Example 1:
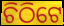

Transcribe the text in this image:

ଚିଠିଟେ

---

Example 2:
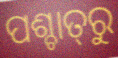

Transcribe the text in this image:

ପଶ୍ଚାତ୍‌ରୁ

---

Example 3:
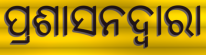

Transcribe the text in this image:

ପ୍ରଶାସନଦ୍ୱାରା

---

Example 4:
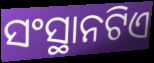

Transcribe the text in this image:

ସଂସ୍ଥାନଟିଏ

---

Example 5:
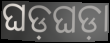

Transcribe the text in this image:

ଘଡ଼ଘଡ଼ା